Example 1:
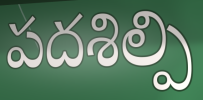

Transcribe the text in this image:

పదశిల్పి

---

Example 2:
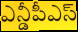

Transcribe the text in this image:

ఎన్డీపీఎస్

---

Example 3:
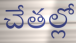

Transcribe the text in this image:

చేతల్లో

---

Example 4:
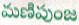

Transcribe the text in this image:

మణిపుంజ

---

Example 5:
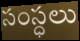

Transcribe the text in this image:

సంస్ధలు